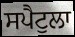
ਸਪੈਟੁਲਾ